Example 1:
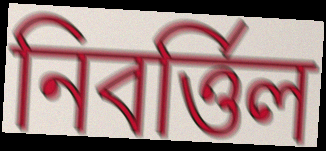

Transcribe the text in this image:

নিবর্ত্তিল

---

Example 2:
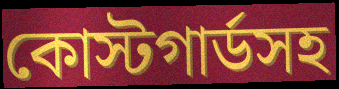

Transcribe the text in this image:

কোস্টগার্ডসহ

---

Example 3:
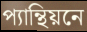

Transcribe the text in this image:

প্যান্থিয়নে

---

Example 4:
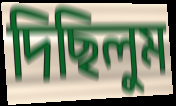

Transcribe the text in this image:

দিছিলুম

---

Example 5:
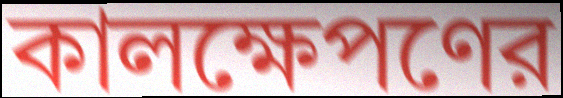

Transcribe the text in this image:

কালক্ষেপণের